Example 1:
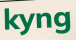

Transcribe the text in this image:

kyng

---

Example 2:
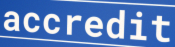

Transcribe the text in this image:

accredit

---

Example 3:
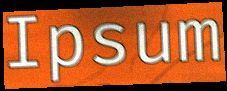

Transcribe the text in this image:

Ipsum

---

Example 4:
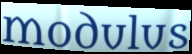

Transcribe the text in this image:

modulus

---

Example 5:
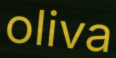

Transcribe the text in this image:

oliva